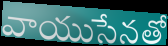
వాయుసేనతో